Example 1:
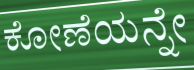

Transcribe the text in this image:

ಕೋಣೆಯನ್ನೇ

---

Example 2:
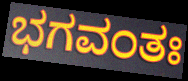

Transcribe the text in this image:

ಭಗವಂತಃ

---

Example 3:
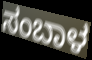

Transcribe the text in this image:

ಸಂಬಾಳ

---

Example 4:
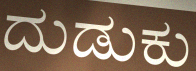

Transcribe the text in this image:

ದುಡುಕು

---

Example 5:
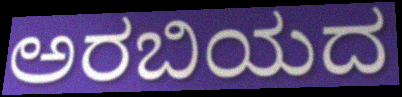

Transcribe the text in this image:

ಅರಬಿಯದ